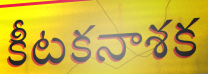
కీటకనాశక